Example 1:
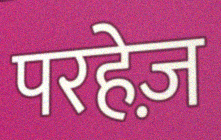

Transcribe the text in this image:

परहेज़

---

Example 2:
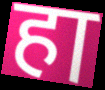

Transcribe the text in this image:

हा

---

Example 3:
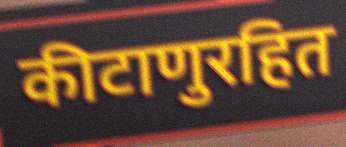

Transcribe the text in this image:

कीटाणुरहित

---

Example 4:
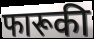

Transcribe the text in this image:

फारूकी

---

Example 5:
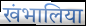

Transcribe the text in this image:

खंभालिया